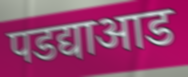
पडद्याआड